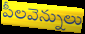
పీలవెన్నులు